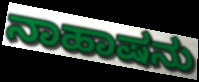
ನಾಹಾಷನು